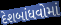
દેશબાંધવોમાં